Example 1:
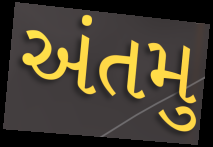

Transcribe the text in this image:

અંતમુ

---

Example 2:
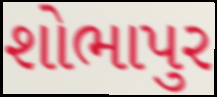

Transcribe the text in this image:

શોભાપુર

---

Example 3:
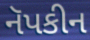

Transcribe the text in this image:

નૅપકીન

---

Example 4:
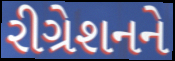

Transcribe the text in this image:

રીગ્રેશનને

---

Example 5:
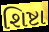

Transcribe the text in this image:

શિષ્ટા